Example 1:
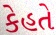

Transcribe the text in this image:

કેહતે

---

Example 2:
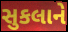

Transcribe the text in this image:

સુકલાને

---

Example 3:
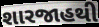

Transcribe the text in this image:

શારજાહથી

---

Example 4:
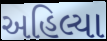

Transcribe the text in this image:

અહિલ્યા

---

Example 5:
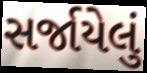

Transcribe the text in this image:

સર્જાયેલું